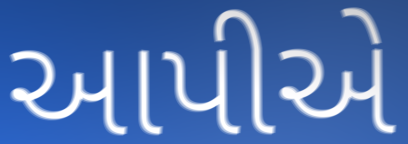
આપીએ